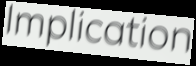
Implication